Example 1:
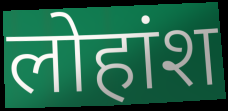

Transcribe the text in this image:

लोहांश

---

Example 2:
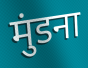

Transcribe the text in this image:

मुंडना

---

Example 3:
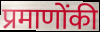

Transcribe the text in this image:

प्रमाणोंकी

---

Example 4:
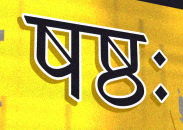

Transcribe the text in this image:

षष्ठः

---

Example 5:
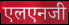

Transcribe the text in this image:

एलएनजी